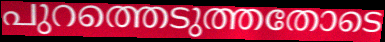
പുറത്തെടുത്തതോടെ